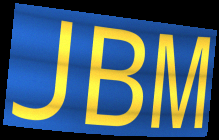
JBM